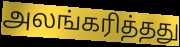
அலங்கரித்தது